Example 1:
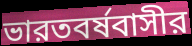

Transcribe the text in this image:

ভারতবর্ষবাসীর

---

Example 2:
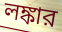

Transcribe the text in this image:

লঙ্কার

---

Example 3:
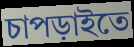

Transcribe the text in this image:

চাপড়াইতে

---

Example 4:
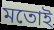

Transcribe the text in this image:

মতোই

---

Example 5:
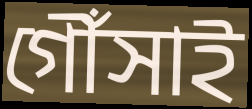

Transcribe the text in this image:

গৌঁসাই